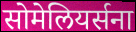
सोमेलियर्सना